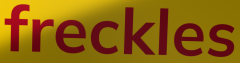
freckles